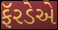
ફૅરડેએ